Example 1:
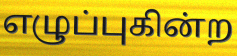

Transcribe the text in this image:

எழுப்புகின்ற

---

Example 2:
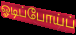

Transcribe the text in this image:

ஓடிப்போய்ப்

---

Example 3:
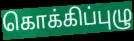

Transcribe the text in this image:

கொக்கிப்புழு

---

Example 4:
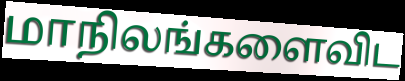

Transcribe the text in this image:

மாநிலங்களைவிட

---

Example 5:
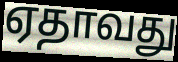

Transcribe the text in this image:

ஏதாவது